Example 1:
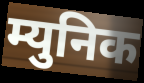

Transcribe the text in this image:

म्युनिक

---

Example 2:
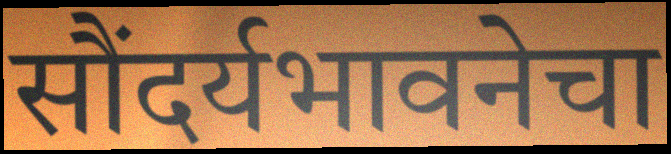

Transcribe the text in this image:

सौंदर्यभावनेचा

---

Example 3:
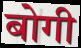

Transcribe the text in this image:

बोगी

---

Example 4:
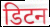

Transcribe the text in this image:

डिटन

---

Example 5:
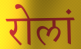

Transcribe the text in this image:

रोलां